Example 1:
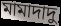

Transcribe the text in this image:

মামাদাদু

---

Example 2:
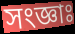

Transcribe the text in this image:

সংজ্ঞাঃ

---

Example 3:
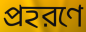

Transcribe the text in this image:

প্রহরণে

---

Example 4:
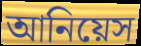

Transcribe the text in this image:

আনিয়েস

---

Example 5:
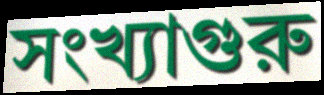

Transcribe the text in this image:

সংখ্যাগুরু